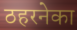
ठहरनेका